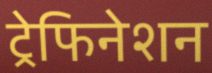
ट्रेफिनेशन